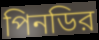
পিনডির